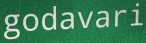
godavari